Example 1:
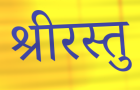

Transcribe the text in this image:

श्रीरस्तु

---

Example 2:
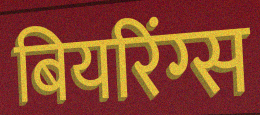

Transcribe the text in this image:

बियरिंग्स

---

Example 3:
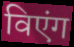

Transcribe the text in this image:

विएंग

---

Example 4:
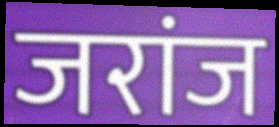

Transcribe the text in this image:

जरांज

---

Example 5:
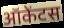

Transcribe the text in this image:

ऑकेंटस